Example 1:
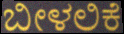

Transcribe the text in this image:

ಬೀಳಲಿಕೆ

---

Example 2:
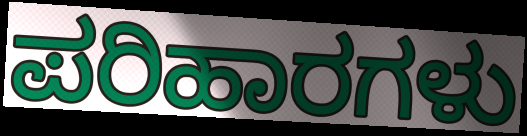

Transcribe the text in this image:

ಪರಿಹಾರಗಳು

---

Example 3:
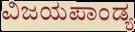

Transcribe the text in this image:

ವಿಜಯಪಾಂಡ್ಯ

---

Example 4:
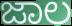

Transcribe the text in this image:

ಜಾಲ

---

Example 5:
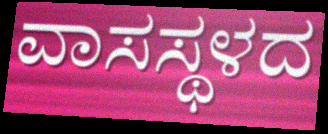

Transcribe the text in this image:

ವಾಸಸ್ಥಳದ